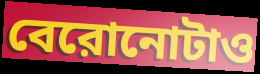
বেরোনোটাও